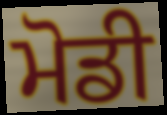
ਮੋਡੀ